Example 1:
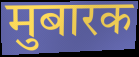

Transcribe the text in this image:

मुबारक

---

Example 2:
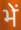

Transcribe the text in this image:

भें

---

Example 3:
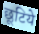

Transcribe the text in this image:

छूटिये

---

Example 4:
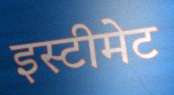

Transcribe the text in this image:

इस्टीमेट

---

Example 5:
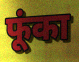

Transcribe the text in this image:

फूंका